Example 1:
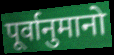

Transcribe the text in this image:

पूर्वानुमानो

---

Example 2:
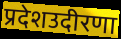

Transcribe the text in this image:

प्रदेशउदीरणा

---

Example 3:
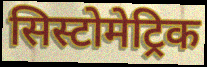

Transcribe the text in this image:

सिस्टोमेट्रिक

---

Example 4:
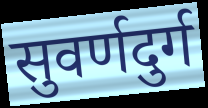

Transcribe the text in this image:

सुवर्णदुर्ग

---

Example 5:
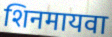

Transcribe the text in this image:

शिनमायवा